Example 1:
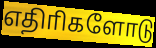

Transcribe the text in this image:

எதிரிகளோடு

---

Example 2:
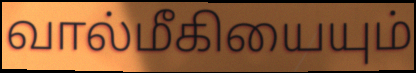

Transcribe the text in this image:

வால்மீகியையும்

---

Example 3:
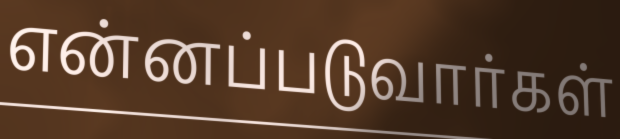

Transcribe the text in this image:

என்னப்படுவார்கள்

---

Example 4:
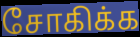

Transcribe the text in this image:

சோகிக்க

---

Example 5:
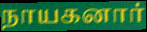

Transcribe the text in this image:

நாயகனார்